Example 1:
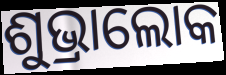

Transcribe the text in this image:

ଶୁଭ୍ରାଲୋକ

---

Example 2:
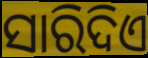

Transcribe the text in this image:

ସାରିଦିଏ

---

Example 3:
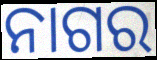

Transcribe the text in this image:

ନାଗର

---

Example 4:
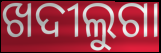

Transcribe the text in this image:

ଖଦୀଲୁଗା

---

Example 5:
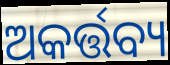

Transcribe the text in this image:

ଅକର୍ତ୍ତବ୍ୟ